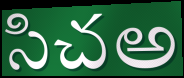
సిచఅ